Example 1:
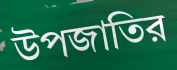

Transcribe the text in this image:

উপজাতির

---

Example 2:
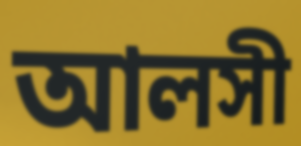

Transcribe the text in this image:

আলসী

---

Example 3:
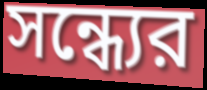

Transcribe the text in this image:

সন্ধ্যের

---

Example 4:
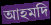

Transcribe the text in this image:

আহমদি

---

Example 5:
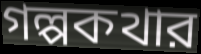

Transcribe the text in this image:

গল্পকথার